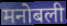
मनोबली